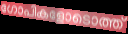
ഗോപികളോടൊത്ത്